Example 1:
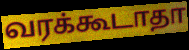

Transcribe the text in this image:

வரக்கூடாதா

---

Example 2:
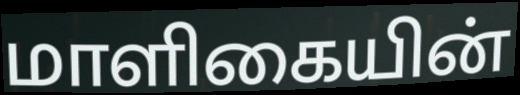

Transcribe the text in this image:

மாளிகையின்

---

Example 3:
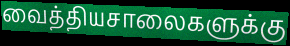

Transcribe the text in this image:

வைத்தியசாலைகளுக்கு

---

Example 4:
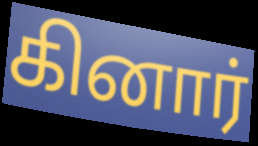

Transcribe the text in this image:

கினார்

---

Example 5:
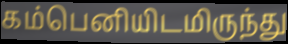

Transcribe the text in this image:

கம்பெனியிடமிருந்து